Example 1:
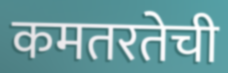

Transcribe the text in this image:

कमतरतेची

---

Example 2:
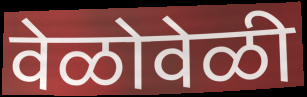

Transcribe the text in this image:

वेळोवेळी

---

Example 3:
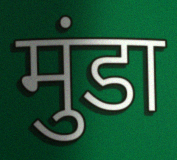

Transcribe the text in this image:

मुंडा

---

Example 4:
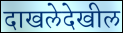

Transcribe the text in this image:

दाखलेदेखील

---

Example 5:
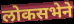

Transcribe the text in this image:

लोकसभेने